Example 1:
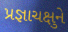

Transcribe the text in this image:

પ્રજ્ઞાચક્ષુને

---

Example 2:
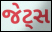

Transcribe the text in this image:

જેટ્સ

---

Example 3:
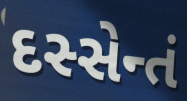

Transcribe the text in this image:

દસ્સેન્તં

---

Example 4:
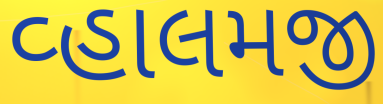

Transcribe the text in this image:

વ્હાલમજી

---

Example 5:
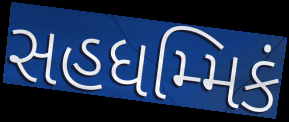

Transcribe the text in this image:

સહધમ્મિકં